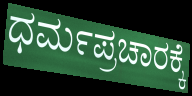
ಧರ್ಮಪ್ರಚಾರಕ್ಕೆ